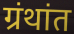
ग्रंथांत